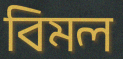
বিমল